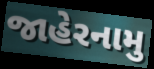
જાહેરનામુ